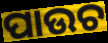
ପାଉଚ